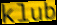
klub